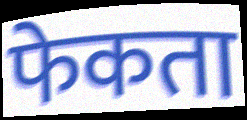
फेकता